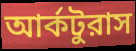
আর্কটুরাস